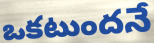
ఒకటుందనే